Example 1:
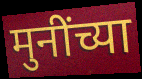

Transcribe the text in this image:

मुनींच्या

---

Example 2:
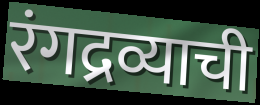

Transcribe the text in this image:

रंगद्रव्याची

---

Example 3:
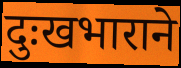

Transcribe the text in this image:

दुःखभाराने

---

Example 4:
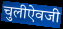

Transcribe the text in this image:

चुलीऐवजी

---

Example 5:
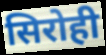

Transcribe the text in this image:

सिरोही